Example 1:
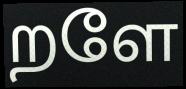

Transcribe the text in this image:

றளே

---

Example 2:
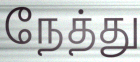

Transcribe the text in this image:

நேத்து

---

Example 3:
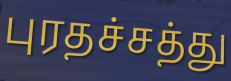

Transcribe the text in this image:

புரதச்சத்து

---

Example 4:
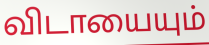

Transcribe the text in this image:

விடாயையும்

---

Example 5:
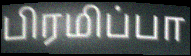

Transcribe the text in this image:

பிரமிப்பா